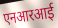
एनआरआई